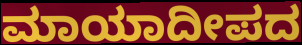
ಮಾಯಾದೀಪದ